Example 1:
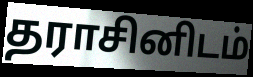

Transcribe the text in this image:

தராசினிடம்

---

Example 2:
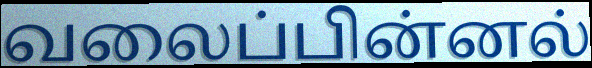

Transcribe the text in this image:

வலைப்பின்னல்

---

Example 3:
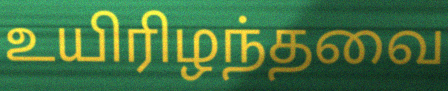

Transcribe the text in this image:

உயிரிழந்தவை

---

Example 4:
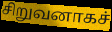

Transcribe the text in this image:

சிறுவனாகச்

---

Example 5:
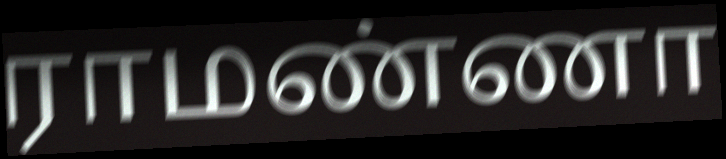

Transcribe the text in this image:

ராமண்ணா